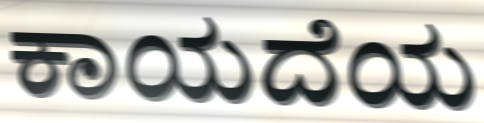
ಕಾಯದೆಯ